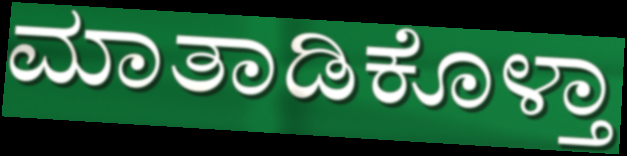
ಮಾತಾಡಿಕೊಳ್ತಾ